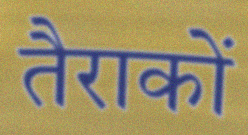
तैराकों